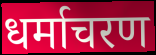
धर्माचरण